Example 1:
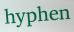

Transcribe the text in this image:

hyphen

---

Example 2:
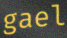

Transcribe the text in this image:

gael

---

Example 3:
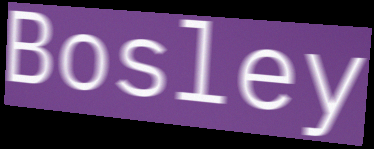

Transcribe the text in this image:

Bosley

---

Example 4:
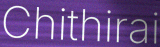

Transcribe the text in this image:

Chithirai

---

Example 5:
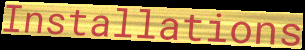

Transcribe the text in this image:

Installations